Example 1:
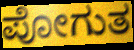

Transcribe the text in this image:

ಪೋಗುತ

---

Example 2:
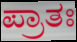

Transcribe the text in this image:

ಪ್ರಾತಃ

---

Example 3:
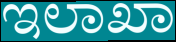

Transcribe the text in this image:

ಇಲಾಖಾ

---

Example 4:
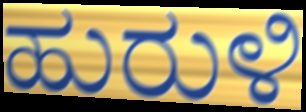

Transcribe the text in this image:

ಹುರುಳಿ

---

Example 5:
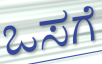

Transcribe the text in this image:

ಒಸಗೆ